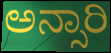
ಅನ್ಸಾರಿ